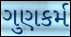
ગુણકર્મ